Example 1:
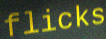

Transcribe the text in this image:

flicks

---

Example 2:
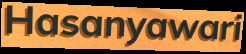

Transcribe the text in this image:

Hasanyawari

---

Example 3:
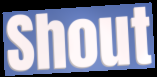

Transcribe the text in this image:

Shout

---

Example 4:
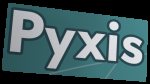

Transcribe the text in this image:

Pyxis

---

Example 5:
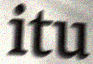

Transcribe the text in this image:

itu